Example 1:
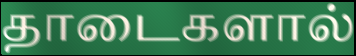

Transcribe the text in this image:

தாடைகளால்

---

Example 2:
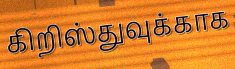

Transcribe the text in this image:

கிறிஸ்துவுக்காக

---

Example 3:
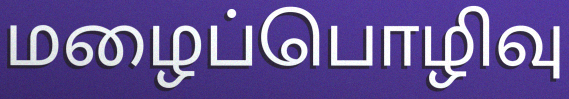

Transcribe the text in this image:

மழைப்பொழிவு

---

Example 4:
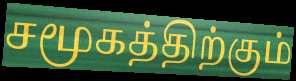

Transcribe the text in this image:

சமூகத்திற்கும்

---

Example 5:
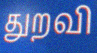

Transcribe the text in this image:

துறவி